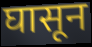
घासून